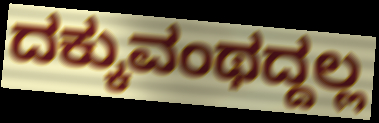
ದಕ್ಕುವಂಥದ್ದಲ್ಲ